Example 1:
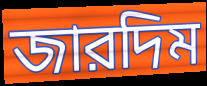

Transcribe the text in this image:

জারদিম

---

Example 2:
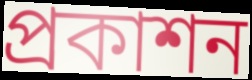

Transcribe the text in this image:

প্রকাশন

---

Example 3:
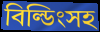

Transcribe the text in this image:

বিল্ডিংসহ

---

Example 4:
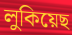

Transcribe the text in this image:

লুকিয়েছ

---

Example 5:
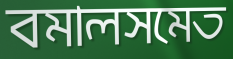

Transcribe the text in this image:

বমালসমেত